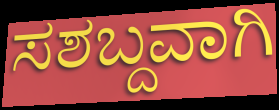
ಸಶಬ್ದವಾಗಿ